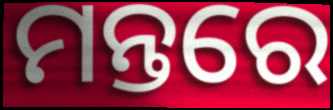
ମନ୍ତରେ